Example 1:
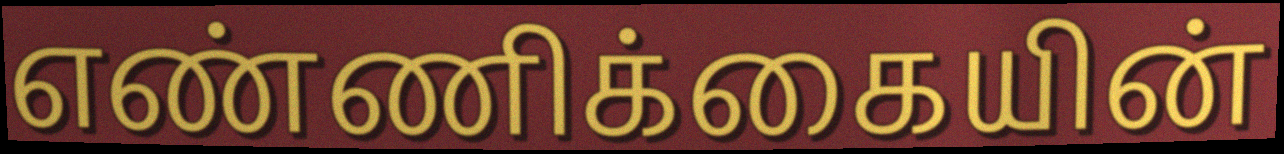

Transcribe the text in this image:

எண்ணிக்கையின்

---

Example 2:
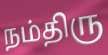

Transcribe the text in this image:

நம்திரு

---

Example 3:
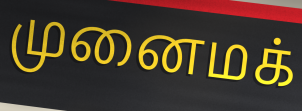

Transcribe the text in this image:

முனைமக்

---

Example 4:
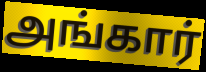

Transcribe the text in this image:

அங்கார்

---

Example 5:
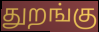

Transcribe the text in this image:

துறங்கு